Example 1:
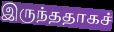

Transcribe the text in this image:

இருந்ததாகச்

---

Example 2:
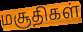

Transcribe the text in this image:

மசூதிகள்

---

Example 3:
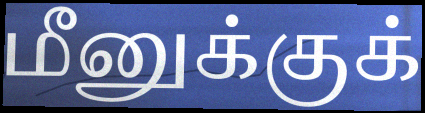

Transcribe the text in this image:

மீனுக்குக்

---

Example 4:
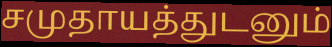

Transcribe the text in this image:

சமுதாயத்துடனும்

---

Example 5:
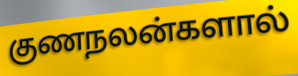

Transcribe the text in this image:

குணநலன்களால்